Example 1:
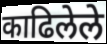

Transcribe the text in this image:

काढिलेले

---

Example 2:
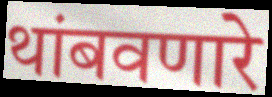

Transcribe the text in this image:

थांबवणारे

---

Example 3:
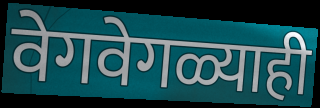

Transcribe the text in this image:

वेगवेगळ्याही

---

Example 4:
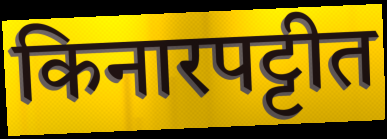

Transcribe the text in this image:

किनारपट्टीत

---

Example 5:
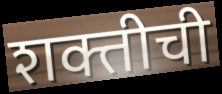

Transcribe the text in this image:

शक्तीची